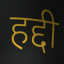
हद्दी